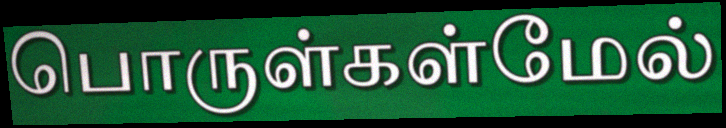
பொருள்கள்மேல்